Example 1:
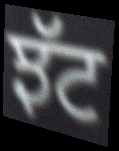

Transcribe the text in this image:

ਝੱਟ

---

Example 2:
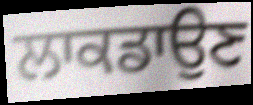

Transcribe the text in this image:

ਲਾਕਡਾਉਣ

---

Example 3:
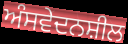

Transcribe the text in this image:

ਅੰਸਵੇਦਨਸ਼ੀਲ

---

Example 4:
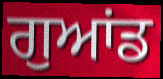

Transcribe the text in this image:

ਗੁਆਂਡ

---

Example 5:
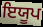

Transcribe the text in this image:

ਇਯੂਪ